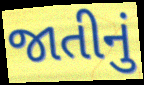
જાતીનું